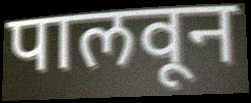
पालवून